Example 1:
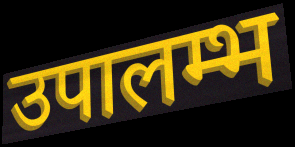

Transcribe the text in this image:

उपालम्भ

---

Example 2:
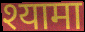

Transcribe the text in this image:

श्यामा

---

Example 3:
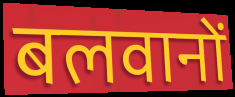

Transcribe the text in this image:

बलवानों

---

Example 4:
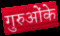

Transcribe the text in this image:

गुरुओंके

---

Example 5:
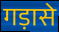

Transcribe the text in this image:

गड़ासे